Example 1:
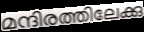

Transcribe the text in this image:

മന്ദിരത്തിലേക്കു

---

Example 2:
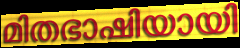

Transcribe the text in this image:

മിതഭാഷിയായി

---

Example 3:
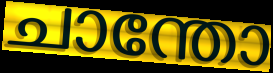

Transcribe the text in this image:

ചാന്തോ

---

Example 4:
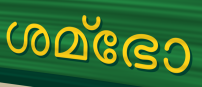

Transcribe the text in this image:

ശമ്ഭോ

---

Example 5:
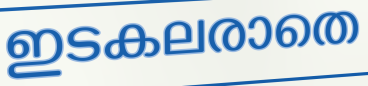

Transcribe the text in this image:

ഇടകലരാതെ